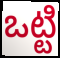
ఒట్టి